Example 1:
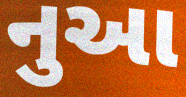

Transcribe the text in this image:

નુઆ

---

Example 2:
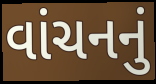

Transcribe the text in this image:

વાંચનનું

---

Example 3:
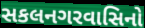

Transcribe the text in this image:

સકલનગરવાસિનો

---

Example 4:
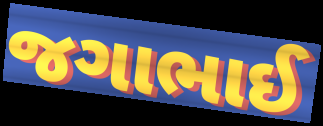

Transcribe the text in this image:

જગાભાઈ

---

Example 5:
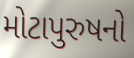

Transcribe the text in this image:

મોટાપુરુષનો